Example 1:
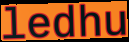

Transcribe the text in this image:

ledhu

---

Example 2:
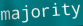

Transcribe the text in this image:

majority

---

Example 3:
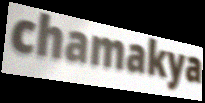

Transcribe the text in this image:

chamakya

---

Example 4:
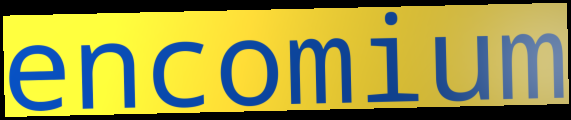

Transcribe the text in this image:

encomium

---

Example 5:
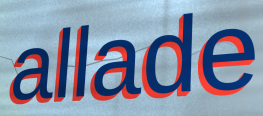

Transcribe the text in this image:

allade